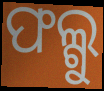
ଫଲ୍ଗୁ